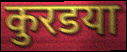
कुरडया